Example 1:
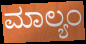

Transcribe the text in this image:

ಮಾಲ್ಯಂ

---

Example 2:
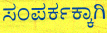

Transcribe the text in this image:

ಸಂಪರ್ಕಕ್ಕಾಗಿ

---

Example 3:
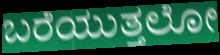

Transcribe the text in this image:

ಬರೆಯುತ್ತಲೋ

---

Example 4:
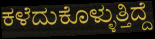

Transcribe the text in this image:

ಕಳೆದುಕೊಳ್ಳುತ್ತಿದ್ದೆ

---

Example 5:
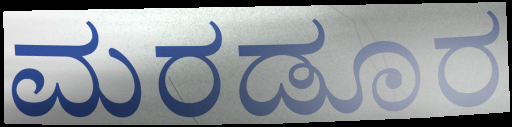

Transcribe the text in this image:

ಮರಡೂರ